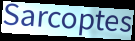
Sarcoptes